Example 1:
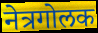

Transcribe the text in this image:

नेत्रगोलक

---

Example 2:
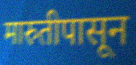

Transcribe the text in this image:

मारुतीपासून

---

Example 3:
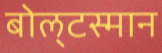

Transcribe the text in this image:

बोल्टस्मान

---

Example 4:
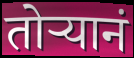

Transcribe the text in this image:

तोऱ्यानं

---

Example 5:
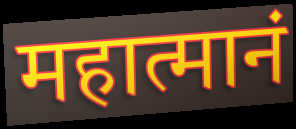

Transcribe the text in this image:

महात्मानं